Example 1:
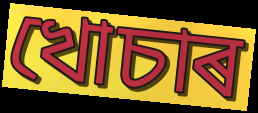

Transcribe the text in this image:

খোচাৰ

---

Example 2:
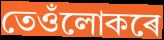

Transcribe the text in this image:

তেওঁলোকৰে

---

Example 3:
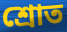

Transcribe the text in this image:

শ্ৰোত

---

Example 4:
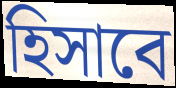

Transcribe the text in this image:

হিসাবে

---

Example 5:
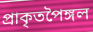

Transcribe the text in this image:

প্ৰাকৃতপৈঙ্গল